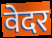
वेदर